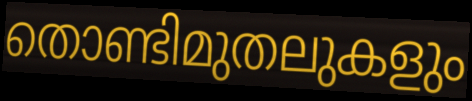
തൊണ്ടിമുതലുകളും